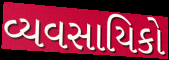
વ્યવસાયિકો